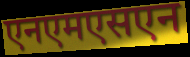
एनएमएसएन